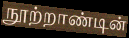
நூற்றாண்டின்